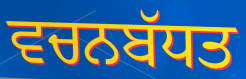
ਵਚਨਬੱਧਤ